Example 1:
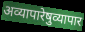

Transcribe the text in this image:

अव्यापारेषुव्यापार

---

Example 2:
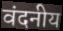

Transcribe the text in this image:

वंदनीय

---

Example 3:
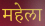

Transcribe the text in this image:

महेला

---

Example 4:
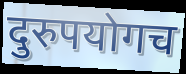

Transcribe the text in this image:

दुरुपयोगच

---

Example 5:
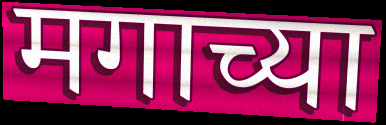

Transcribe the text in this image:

मगाच्या